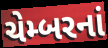
ચેમ્બરનાં